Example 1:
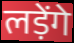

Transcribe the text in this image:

लड़ेंगे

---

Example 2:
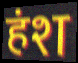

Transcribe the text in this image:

हंश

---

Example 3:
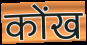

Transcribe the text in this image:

कोंख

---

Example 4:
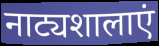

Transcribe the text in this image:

नाट्यशालाएं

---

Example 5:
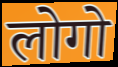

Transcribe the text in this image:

लोगो